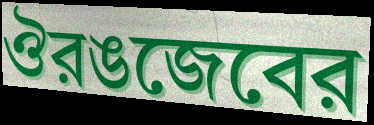
ঔরঙজেবের